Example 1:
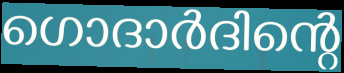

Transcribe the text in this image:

ഗൊദാർദിന്റെ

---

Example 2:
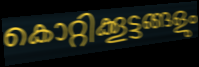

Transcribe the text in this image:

കൊറ്റിക്കൂട്ടങ്ങളും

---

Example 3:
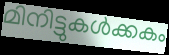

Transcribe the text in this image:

മിനിട്ടുകൾക്കകം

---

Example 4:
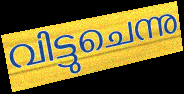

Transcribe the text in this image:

വിട്ടുചെന്നു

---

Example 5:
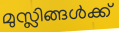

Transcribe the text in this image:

മുസ്ലിങ്ങൾക്ക്